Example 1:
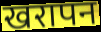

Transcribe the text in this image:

खरापन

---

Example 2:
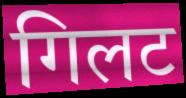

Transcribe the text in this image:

गिलट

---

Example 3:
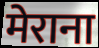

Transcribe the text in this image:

मेराना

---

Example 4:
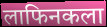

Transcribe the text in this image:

लाफिनकला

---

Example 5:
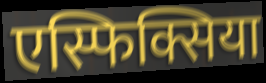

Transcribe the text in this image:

एस्फिक्सिया